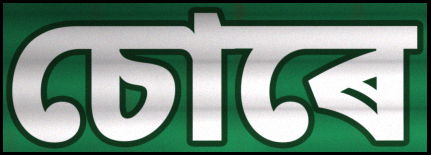
চোৰে